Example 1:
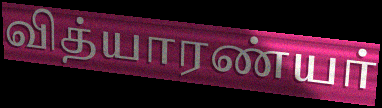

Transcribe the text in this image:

வித்யாரண்யர்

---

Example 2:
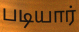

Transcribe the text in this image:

படியார்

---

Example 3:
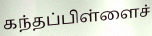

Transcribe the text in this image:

கந்தப்பிள்ளைச்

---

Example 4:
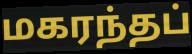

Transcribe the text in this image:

மகரந்தப்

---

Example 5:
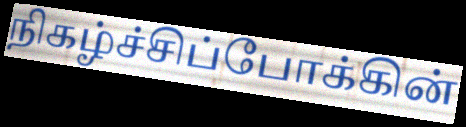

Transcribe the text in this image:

நிகழ்ச்சிப்போக்கின்